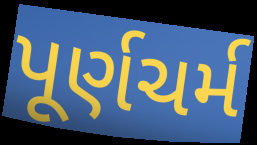
પૂર્ણચર્મ